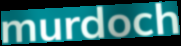
murdoch